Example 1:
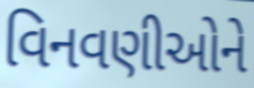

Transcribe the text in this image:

વિનવણીઓને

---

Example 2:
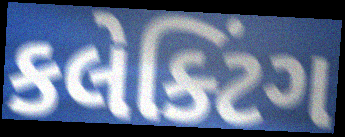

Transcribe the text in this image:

કલેક્ટિંગ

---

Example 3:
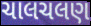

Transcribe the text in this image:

ચાલચલણ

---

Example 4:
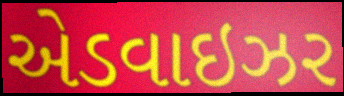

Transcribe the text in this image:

એડવાઇઝર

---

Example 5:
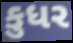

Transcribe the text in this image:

કુધર